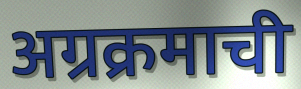
अग्रक्रमाची